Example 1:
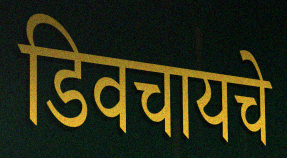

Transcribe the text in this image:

डिवचायचे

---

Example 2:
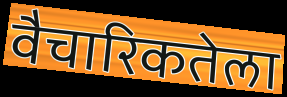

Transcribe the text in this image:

वैचारिकतेला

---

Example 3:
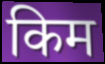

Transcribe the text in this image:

किम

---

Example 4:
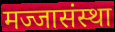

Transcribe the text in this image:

मज्जासंस्था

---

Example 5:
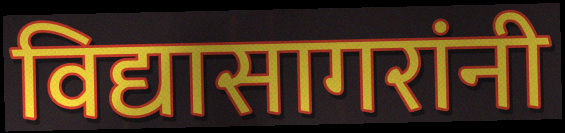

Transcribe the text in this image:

विद्यासागरांनी